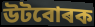
উটবোৰক